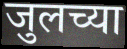
जुलच्या